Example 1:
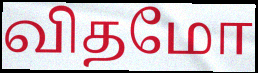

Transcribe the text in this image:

விதமோ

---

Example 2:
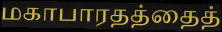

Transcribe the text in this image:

மகாபாரதத்தைத்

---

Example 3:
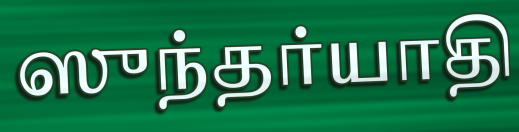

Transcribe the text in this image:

ஸுந்தர்யாதி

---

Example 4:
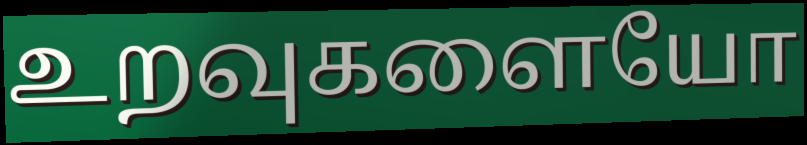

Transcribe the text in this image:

உறவுகளையோ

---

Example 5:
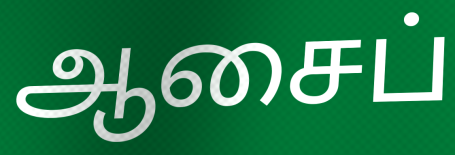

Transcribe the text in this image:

ஆசைப்